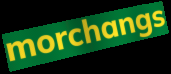
morchangs